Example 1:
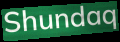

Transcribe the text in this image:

Shundaq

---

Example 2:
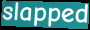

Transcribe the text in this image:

slapped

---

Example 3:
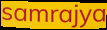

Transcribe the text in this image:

samrajya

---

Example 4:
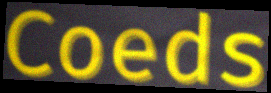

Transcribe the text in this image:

Coeds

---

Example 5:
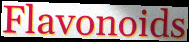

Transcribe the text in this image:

Flavonoids